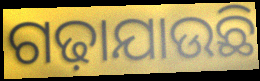
ଗଢ଼ାଯାଉଛି